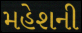
મહેશની